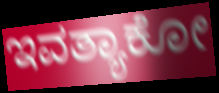
ಇವತ್ಯಾಕೋ